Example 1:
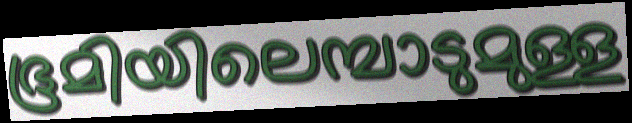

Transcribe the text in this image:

ഭൂമിയിലെമ്പാടുമുള്ള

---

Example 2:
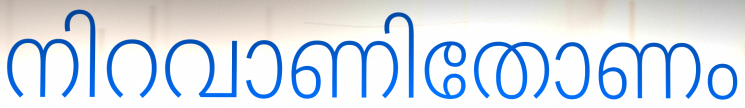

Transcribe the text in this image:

നിറവാണിതോണം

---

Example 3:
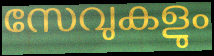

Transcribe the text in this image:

സേവുകളും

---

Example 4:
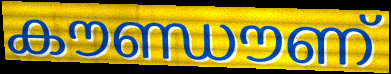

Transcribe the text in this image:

കൗണ്ഡൗണ്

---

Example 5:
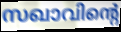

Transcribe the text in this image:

സഖാവിന്റെ